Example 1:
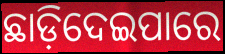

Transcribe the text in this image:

ଛାଡ଼ିଦେଇପାରେ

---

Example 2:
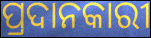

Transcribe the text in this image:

ପ୍ରଦାନକାରୀ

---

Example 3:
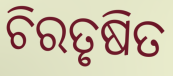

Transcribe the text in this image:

ଚିରତୃଷିତ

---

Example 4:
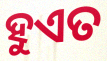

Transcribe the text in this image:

ହୁଏତ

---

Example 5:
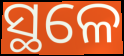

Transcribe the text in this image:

ସ୍ଥଳେ